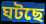
ঘটছে